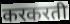
करकरती